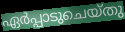
ഏർപ്പാടുചെയ്തു